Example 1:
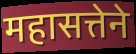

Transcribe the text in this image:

महासत्तेने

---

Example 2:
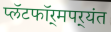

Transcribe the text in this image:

प्लॅटफॉर्मपर्यंत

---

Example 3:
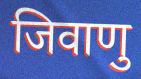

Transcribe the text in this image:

जिवाणु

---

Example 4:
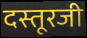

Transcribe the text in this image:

दस्तूरजी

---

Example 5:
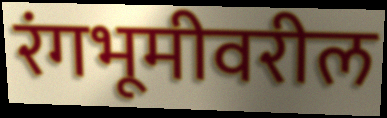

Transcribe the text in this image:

रंगभूमीवरील